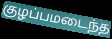
குழப்பமடைந்த